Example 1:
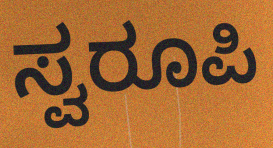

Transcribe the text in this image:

ಸ್ವರೂಪಿ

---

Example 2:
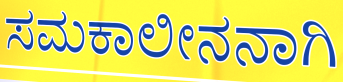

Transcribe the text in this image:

ಸಮಕಾಲೀನನಾಗಿ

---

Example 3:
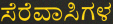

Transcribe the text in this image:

ಸೆರೆವಾಸಿಗಳ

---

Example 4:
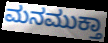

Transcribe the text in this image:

ಮನಮುಕ್ತಾ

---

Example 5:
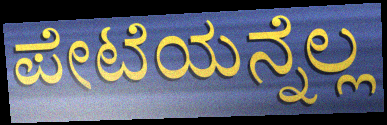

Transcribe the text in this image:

ಪೇಟೆಯನ್ನೆಲ್ಲ